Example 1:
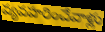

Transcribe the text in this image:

వ్యవహరించేవాళ్లు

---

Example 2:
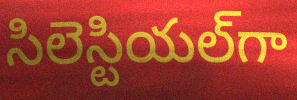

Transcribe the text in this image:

సిలెస్టియల్‌గా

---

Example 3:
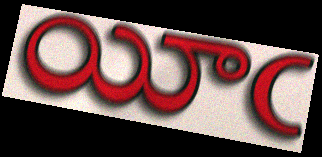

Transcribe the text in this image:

యీఁ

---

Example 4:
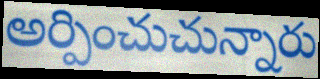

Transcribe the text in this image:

అర్పించుచున్నారు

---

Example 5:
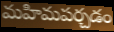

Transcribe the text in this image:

మహిమపర్చడం